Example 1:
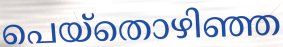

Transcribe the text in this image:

പെയ്തൊഴിഞ്ഞ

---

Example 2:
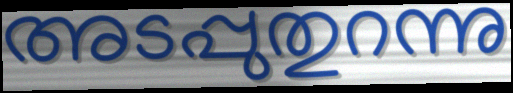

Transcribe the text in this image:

അടപ്പുതുറന്നു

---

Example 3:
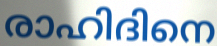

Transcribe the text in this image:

രാഹിദിനെ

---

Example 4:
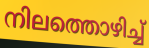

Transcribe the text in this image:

നിലത്തൊഴിച്ച്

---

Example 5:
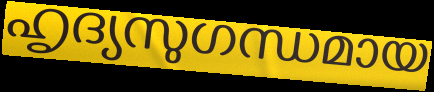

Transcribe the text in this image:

ഹൃദ്യസുഗന്ധമായ